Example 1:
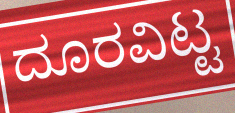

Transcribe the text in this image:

ದೂರವಿಟ್ಟ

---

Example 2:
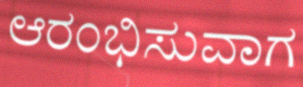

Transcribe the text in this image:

ಆರಂಭಿಸುವಾಗ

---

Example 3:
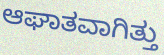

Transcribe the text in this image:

ಆಘಾತವಾಗಿತ್ತು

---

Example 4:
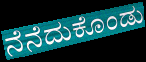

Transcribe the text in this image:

ನೆನೆದುಕೊಂಡು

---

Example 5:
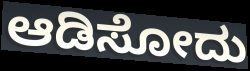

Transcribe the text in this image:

ಆಡಿಸೋದು